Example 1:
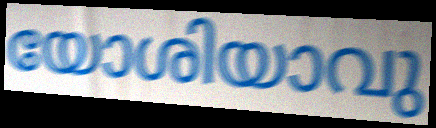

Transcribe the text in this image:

യോശിയാവു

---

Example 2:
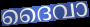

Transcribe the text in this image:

ദൈവാ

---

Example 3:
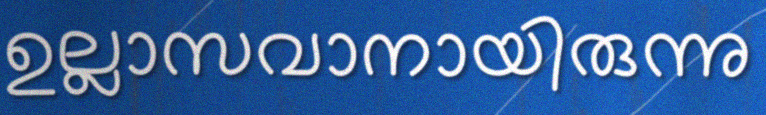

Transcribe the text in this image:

ഉല്ലാസവാനായിരുന്നു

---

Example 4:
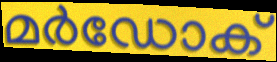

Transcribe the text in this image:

മർഡോക്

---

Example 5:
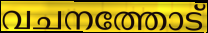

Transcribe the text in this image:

വചനത്തോട്